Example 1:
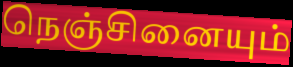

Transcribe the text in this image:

நெஞ்சினையும்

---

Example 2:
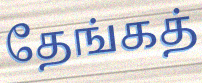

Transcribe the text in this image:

தேங்கத்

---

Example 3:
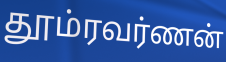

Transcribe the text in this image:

தூம்ரவர்ணன்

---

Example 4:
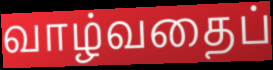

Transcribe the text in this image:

வாழ்வதைப்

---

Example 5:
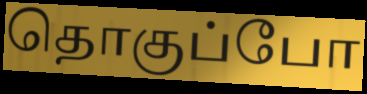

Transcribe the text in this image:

தொகுப்போ